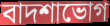
বাদশাভোগ